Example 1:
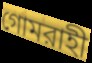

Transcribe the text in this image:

গোমরাহী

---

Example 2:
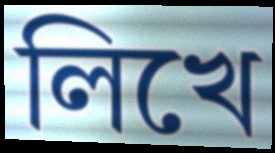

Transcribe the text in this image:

লিখে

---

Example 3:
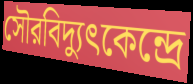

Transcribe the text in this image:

সৌরবিদ্যুৎকেন্দ্রে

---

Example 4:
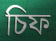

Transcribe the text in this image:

চিফ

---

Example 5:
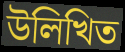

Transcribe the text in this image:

উলিখিত